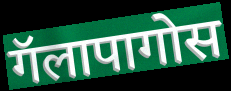
गॅलापागोस